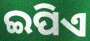
ଇପିଏ